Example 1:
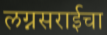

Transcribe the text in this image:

लग्नसराईचा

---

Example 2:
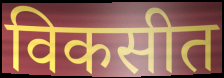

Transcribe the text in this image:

विकसीत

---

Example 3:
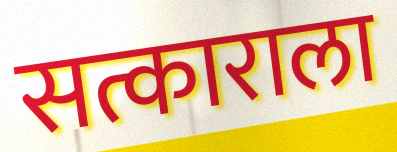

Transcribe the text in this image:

सत्काराला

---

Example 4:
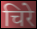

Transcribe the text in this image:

चिरे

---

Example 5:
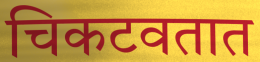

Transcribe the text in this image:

चिकटवतात